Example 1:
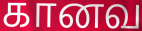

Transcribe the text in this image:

கானவ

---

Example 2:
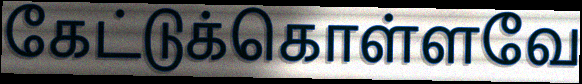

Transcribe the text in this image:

கேட்டுக்கொள்ளவே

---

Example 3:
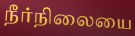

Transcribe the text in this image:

நீர்நிலையை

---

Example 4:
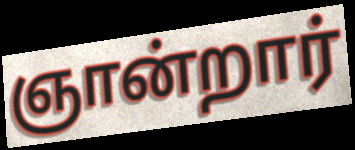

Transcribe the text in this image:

ஞான்றார்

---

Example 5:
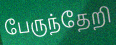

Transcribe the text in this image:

பேருந்தேறி